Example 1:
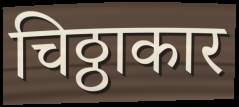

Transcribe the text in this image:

चिठ्ठाकार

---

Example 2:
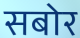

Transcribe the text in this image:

सबोर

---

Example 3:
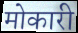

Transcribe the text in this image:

मोकारी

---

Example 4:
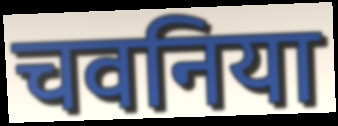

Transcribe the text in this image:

चवनिया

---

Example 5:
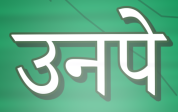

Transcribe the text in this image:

उनपे